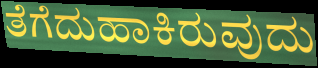
ತೆಗೆದುಹಾಕಿರುವುದು